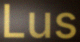
Lus